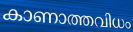
കാണാത്തവിധം